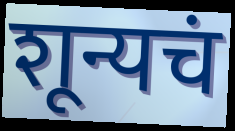
शून्यचं